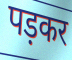
पड़कर